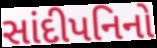
સાંદીપનિનો